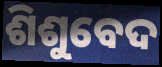
ଶିଶୁବେଦ